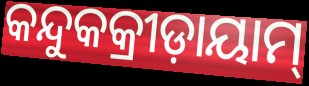
କନ୍ଦୁକକ୍ରୀଡ଼ାୟାମ୍